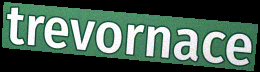
trevornace